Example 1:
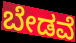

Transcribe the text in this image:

ಬೇಡವೆ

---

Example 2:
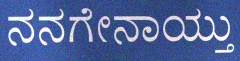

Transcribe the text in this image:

ನನಗೇನಾಯ್ತು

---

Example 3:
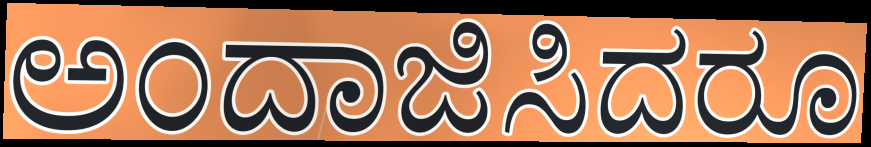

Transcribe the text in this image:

ಅಂದಾಜಿಸಿದರೂ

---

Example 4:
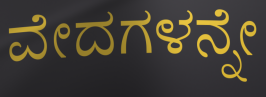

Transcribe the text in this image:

ವೇದಗಳನ್ನೇ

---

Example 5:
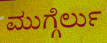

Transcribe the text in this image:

ಮುಗ್ಗೆರ್ಲು